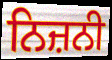
ਨਿਜ਼ਨੀ